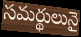
సమర్థులునై